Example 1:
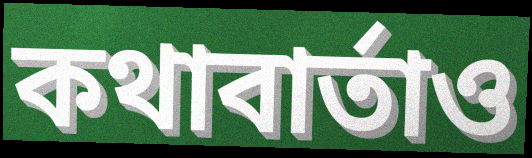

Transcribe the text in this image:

কথাবার্তাও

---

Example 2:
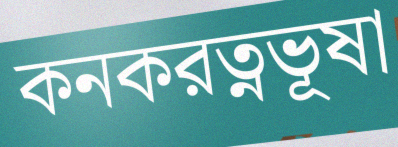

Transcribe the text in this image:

কনকরত্নভূষা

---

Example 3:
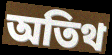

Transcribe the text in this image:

অতিথ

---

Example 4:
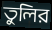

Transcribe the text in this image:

তুলির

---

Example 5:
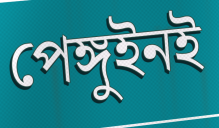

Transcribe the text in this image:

পেঙ্গুইনই